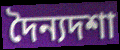
দৈন্যদশা